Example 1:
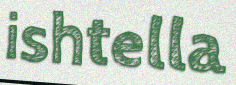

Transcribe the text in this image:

ishtella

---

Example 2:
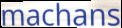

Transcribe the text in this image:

machans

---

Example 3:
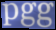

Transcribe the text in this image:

pgg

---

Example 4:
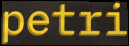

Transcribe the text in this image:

petri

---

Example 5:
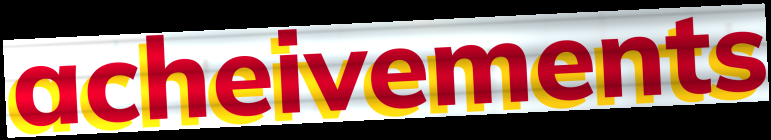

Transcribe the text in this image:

acheivements